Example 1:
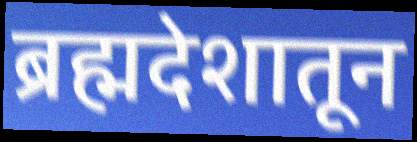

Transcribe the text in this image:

ब्रह्मदेशातून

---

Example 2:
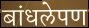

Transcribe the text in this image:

बांधलेपण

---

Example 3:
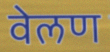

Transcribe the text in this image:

वेलण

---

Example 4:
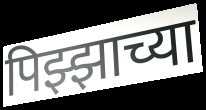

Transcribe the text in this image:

पिझ्झाच्या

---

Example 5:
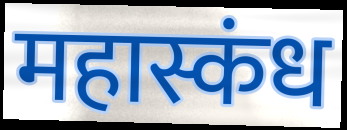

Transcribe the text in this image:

महास्कंध